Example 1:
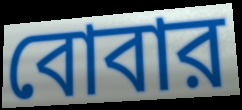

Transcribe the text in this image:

বোবার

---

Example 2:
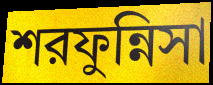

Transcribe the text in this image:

শরফুন্নিসা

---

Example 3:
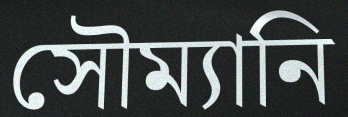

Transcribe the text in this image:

সৌম্যানি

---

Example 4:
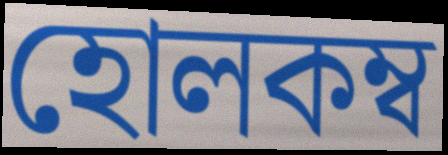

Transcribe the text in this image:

হোলকম্ব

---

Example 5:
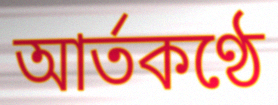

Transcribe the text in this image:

আর্তকণ্ঠে